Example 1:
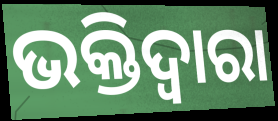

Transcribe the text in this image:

ଭକ୍ତିଦ୍ଵାରା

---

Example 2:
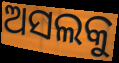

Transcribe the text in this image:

ଅସଲକୁ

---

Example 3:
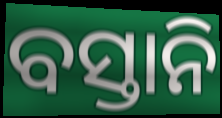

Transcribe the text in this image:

ବସ୍ତାନି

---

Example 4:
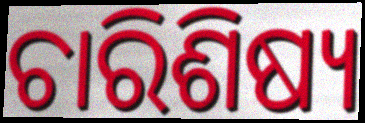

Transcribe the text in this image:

ଚାରିଶିଷ୍ୟ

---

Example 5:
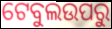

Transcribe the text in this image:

ଟେବୁଲଉପରୁ